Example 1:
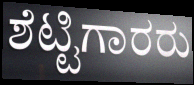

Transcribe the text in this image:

ಶೆಟ್ಟಿಗಾರರು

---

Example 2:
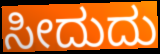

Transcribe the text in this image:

ಸೀದುದು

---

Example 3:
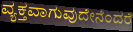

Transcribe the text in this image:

ವ್ಯಕ್ತವಾಗುವುದೇನೆಂದರೆ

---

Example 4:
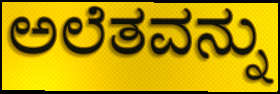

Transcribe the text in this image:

ಅಲೆತವನ್ನು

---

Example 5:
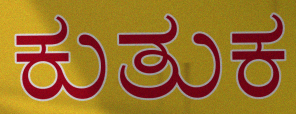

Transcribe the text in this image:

ಕುತುಕ